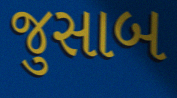
જુસાબ